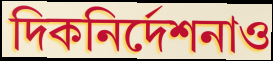
দিকনির্দেশনাও